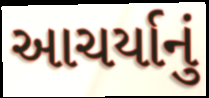
આચર્યાનું